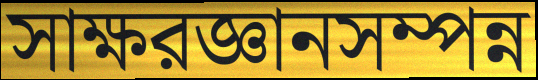
সাক্ষরজ্ঞানসম্পন্ন